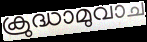
ക്രുദ്ധാമുവാച